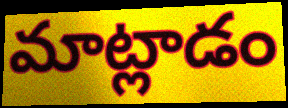
మాట్లాడం